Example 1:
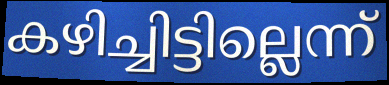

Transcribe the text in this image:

കഴിച്ചിട്ടില്ലെന്ന്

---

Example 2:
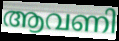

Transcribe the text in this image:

ആവണി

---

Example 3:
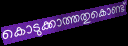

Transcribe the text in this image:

കൊടുക്കാത്തതുകൊണ്ട്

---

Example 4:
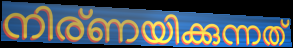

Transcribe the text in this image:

നിര്ണയിക്കുന്നത്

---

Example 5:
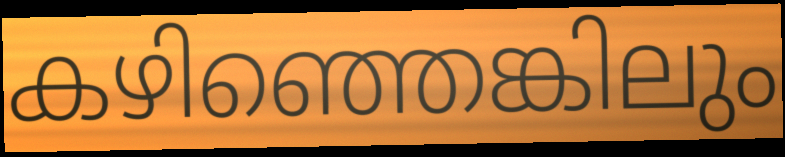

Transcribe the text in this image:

കഴിഞ്ഞെങ്കിലും